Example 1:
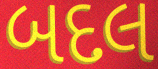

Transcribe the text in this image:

બદલ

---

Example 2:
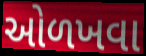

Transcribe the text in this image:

ઓળખવા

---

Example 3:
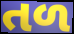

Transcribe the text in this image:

તળ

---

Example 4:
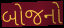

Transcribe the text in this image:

બોજનો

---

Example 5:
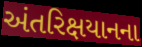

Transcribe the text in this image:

અંતરિક્ષયાનના